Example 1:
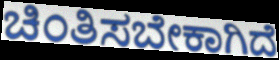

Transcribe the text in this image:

ಚಿಂತಿಸಬೇಕಾಗಿದೆ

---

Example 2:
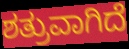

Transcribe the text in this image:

ಶತ್ರುವಾಗಿದೆ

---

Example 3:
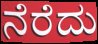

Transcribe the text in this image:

ನೆರೆದು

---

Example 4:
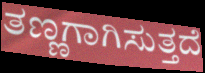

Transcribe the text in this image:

ತಣ್ಣಗಾಗಿಸುತ್ತದೆ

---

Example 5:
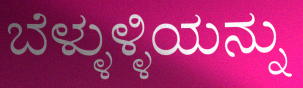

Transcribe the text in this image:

ಬೆಳ್ಳುಳ್ಳಿಯನ್ನು